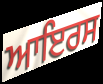
ਆਇਰਸ